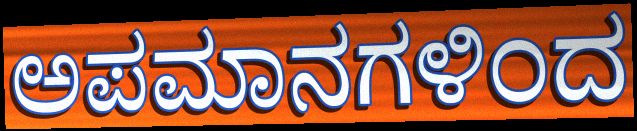
ಅಪಮಾನಗಳಿಂದ